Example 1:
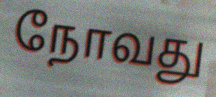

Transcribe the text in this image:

நோவது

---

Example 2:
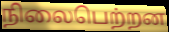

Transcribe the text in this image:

நிலைபெற்றன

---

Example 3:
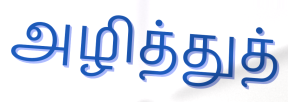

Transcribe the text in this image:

அழித்துத்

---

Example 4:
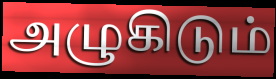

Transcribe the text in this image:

அழுகிடும்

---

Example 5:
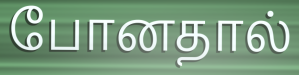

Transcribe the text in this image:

போனதால்